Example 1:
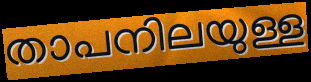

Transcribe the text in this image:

താപനിലയുള്ള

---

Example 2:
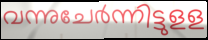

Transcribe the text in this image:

വന്നുചേർന്നിട്ടുളള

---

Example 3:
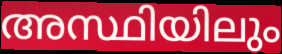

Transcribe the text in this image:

അസ്ഥിയിലും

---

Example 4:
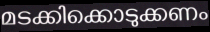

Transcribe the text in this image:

മടക്കിക്കൊടുക്കണം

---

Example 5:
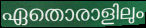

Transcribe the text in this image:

ഏതൊരാളിലും